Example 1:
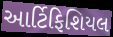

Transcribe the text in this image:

આર્ટિફિશિયલ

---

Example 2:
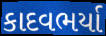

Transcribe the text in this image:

કાદવભર્યા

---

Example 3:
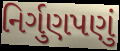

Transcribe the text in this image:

નિર્ગુણપણું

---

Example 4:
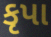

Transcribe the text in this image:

કૃપા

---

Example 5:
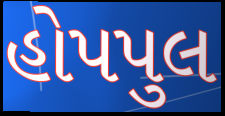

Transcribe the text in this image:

હોપપુલ